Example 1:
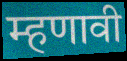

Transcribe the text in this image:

म्हणावी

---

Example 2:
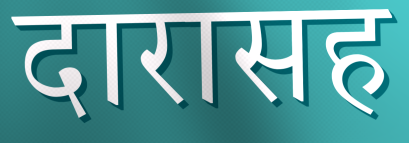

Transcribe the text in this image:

दारासह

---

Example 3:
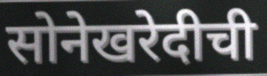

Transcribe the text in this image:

सोनेखरेदीची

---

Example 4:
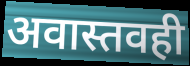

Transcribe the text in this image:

अवास्तवही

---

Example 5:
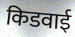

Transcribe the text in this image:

किडवाई